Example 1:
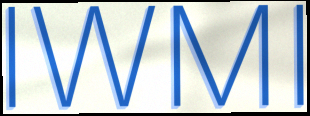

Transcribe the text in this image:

IWMI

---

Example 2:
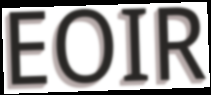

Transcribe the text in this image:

EOIR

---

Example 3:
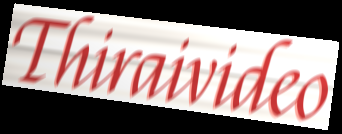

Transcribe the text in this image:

Thiraivideo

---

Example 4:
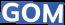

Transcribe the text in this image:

GOM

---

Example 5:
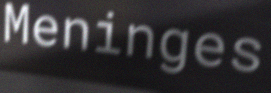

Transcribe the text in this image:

Meninges